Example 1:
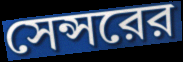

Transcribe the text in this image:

সেন্সরের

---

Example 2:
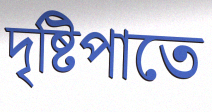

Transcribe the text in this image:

দৃষ্টিপাতে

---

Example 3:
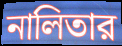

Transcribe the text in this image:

নালিতার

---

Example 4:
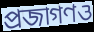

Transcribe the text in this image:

প্রজাগণও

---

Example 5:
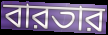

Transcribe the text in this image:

বারতার